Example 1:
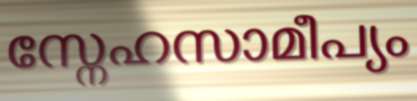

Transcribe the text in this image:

സ്നേഹസാമീപ്യം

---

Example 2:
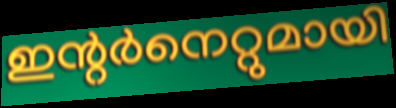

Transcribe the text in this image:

ഇന്റർനെറ്റുമായി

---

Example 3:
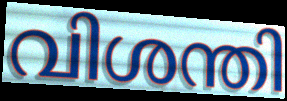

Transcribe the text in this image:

വിശന്തി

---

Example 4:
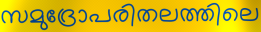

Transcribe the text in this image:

സമുദ്രോപരിതലത്തിലെ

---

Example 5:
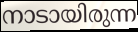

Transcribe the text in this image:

നാടായിരുന്ന